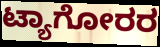
ಟ್ಯಾಗೋರರ